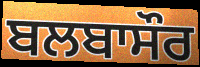
ਬਲਬਾਸੌਰ